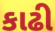
કાઢી